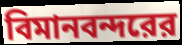
বিমানবন্দরের